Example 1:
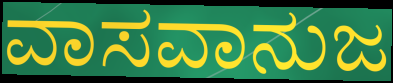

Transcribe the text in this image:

ವಾಸವಾನುಜ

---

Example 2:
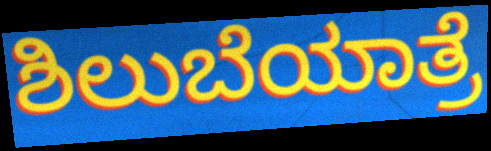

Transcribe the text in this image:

ಶಿಲುಬೆಯಾತ್ರೆ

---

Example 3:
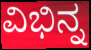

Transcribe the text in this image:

ವಿಭಿನ್ನ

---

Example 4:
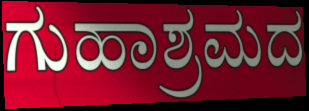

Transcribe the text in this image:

ಗುಹಾಶ್ರಮದ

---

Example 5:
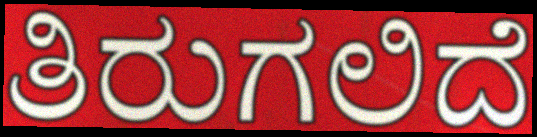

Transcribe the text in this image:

ತಿರುಗಲಿದೆ